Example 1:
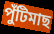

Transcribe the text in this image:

পুঁটিমাছ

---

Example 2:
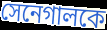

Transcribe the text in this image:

সেনেগালকে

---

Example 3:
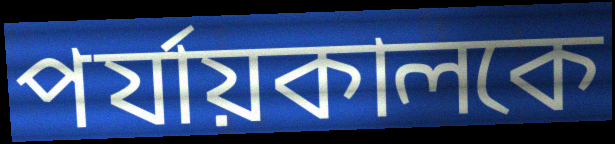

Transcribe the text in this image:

পর্যায়কালকে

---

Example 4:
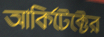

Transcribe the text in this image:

আর্কিটেক্টের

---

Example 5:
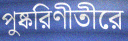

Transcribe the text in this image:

পুষ্করিণীতীরে